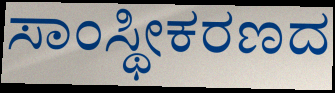
ಸಾಂಸ್ಥೀಕರಣದ